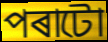
পৰাটো